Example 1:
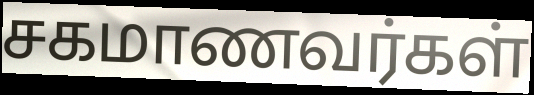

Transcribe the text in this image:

சகமாணவர்கள்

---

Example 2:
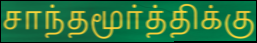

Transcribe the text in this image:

சாந்தமூர்த்திக்கு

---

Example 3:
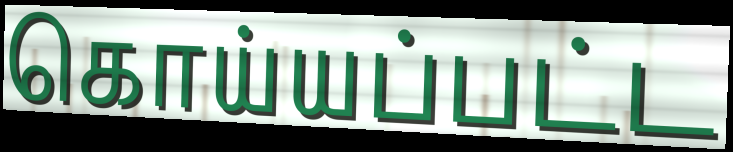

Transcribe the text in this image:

கொய்யப்பட்ட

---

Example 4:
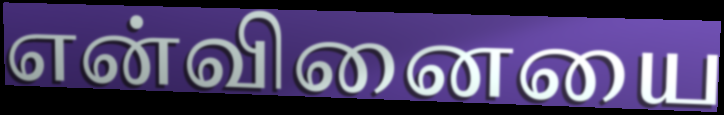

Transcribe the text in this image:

என்வினையை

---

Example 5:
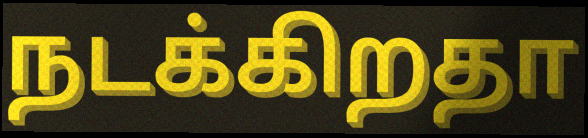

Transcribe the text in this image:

நடக்கிறதா